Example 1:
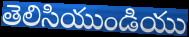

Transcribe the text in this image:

తెలిసియుండియు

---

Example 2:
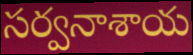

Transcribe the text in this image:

సర్వనాశాయ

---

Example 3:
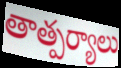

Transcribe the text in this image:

తాత్పర్యాలు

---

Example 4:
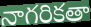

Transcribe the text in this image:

నాగరికతా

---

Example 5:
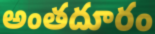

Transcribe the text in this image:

అంతదూరం